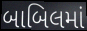
બાબિલમાં